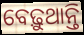
ବେଢ଼ୁଥାନ୍ତି